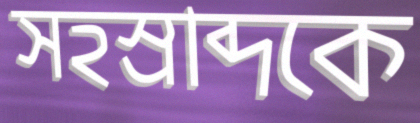
সহস্রাব্দকে